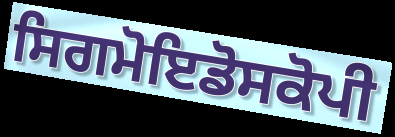
ਸਿਗਮੋਇਡੋਸਕੋਪੀ